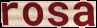
rosa